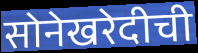
सोनेखरेदीची